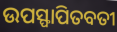
ଉପସ୍ଫାପିତବତୀ